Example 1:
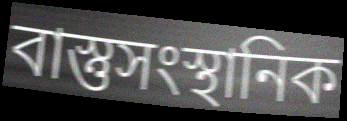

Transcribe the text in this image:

বাস্তুসংস্থানিক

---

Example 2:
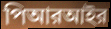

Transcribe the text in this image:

পিআরআইর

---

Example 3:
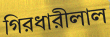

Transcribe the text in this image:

গিরধারীলাল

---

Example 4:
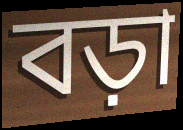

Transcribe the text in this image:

বড়া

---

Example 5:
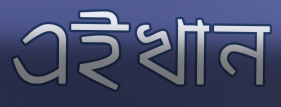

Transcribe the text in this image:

এইখান